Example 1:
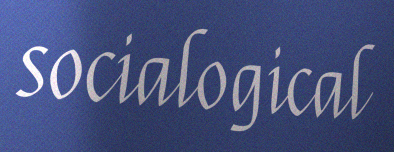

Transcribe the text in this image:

socialogical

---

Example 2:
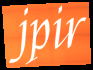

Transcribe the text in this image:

jpir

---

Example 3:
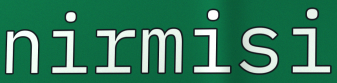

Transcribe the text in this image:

nirmisi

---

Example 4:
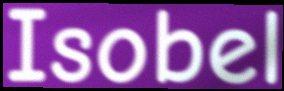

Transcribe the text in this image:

Isobel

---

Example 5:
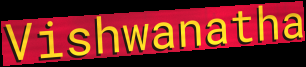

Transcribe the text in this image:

Vishwanatha